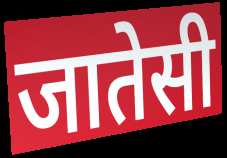
जातेसी